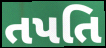
તપતિ